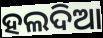
ହଲଦିଆ